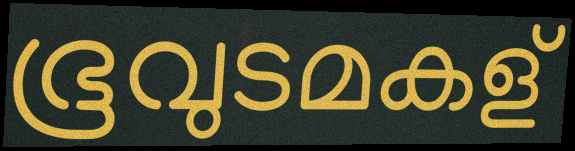
ഭൂവുടമകള്